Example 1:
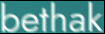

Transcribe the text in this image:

bethak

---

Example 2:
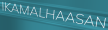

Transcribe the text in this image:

IKAMALHAASAN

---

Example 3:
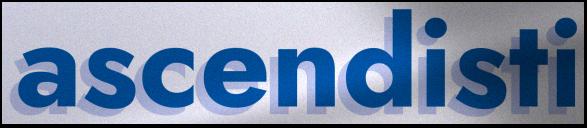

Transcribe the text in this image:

ascendisti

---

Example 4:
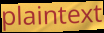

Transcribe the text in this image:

plaintext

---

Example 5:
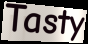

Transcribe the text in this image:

Tasty